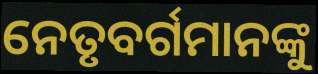
ନେତୃବର୍ଗମାନଙ୍କୁ